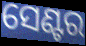
ସେଣ୍ଟର